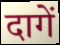
दागें